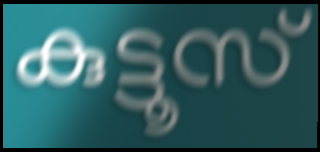
കുട്ടൂസ്